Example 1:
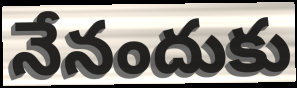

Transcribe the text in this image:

నేనందుకు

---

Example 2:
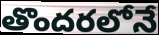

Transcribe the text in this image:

తొందరలోనే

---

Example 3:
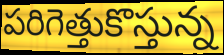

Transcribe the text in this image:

పరిగెత్తుకొస్తున్న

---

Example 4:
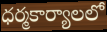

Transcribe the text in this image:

ధర్మకార్యాలలో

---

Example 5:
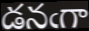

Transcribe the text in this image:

డనఁగా